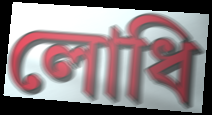
লোধি